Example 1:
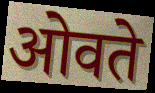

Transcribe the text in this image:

ओवते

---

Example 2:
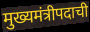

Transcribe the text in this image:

मुख्यमंत्रीपदाची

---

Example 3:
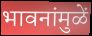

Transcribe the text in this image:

भावनांमुळें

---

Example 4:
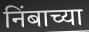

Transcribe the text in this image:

निंबाच्या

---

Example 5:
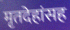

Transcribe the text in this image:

मृतदेहांसह